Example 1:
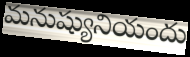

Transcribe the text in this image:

మనుష్యునియందు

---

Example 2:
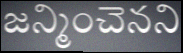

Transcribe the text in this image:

జన్మించెనని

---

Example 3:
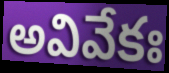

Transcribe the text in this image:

అవివేకః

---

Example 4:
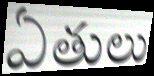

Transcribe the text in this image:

ఏతులు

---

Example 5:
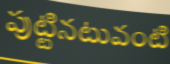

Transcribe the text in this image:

పుట్టినటువంటి